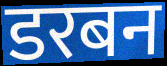
डरबन